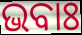
ଭବାଃ